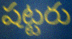
షట్టరు